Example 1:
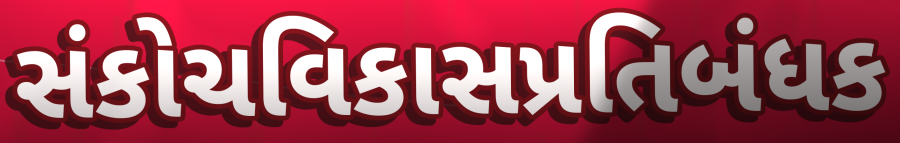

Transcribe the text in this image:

સંકોચવિકાસપ્રતિબંધક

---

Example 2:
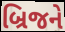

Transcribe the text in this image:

બ્રિજને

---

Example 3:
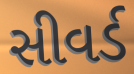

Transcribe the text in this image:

સીવર્ડ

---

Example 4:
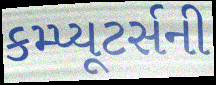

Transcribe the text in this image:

કમ્પ્યૂટર્સની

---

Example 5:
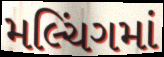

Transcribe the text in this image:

મલ્ચિંગમાં